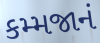
કમ્મજાનં